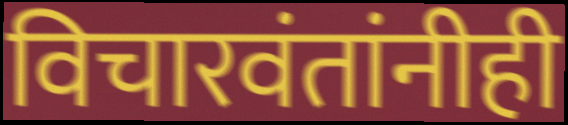
विचारवंतांनीही